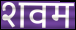
शवम